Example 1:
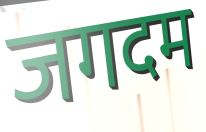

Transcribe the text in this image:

जगदम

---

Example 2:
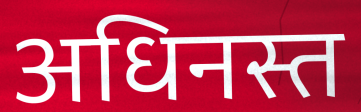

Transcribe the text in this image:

अधिनस्त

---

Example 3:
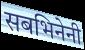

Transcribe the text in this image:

सबभिनेनी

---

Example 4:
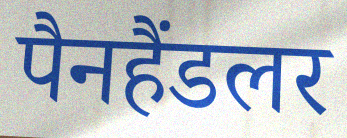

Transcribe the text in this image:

पैनहैंडलर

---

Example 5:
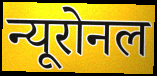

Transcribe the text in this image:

न्यूरोनल